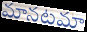
మానటమా